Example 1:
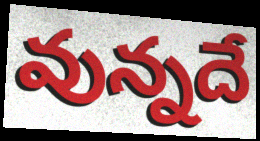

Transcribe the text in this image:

వున్నదే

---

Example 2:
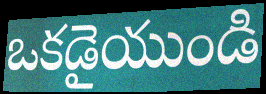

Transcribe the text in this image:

ఒకడైయుండి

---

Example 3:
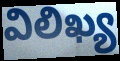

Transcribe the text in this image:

విలిఖ్య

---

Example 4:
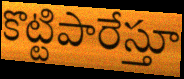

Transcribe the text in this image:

కొట్టిపారేస్తూ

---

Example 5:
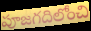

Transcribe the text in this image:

పూజగదిలోంచి